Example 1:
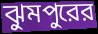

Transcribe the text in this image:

ঝুমপুরের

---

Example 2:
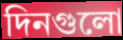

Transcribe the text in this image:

দিনগুলো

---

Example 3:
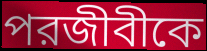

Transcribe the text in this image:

পরজীবীকে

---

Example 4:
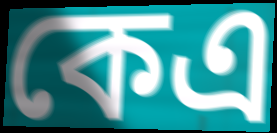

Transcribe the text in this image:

কেএ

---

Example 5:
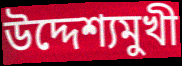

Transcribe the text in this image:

উদ্দেশ্যমুখী